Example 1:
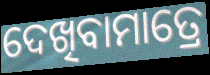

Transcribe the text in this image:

ଦେଖିବାମାତ୍ରେ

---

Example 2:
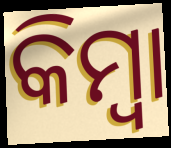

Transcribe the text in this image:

କିମ୍ବା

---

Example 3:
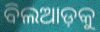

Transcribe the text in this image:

ବିଲଆଡ଼କୁ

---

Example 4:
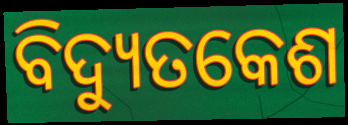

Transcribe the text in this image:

ବିଦ୍ୟୁତକେଶ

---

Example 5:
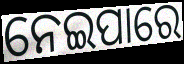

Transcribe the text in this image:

ନେଇପାରେ